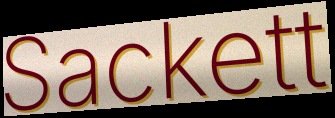
Sackett